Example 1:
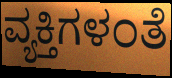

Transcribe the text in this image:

ವ್ಯಕ್ತಿಗಳಂತೆ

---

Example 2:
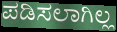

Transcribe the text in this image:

ಪಡಿಸಲಾಗಿಲ್ಲ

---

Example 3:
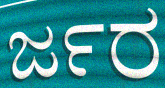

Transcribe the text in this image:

ರ್ಜರ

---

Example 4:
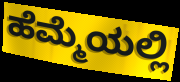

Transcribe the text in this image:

ಹೆಮ್ಮೆಯಲ್ಲಿ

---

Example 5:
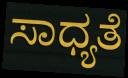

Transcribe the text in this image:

ಸಾಧ್ಯತೆ